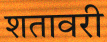
शतावरी